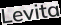
Levita